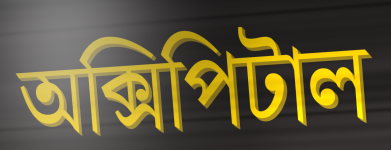
অক্সিপিটাল